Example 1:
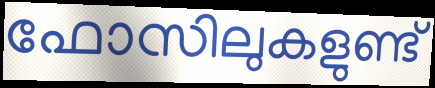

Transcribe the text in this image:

ഫോസിലുകളുണ്ട്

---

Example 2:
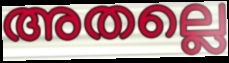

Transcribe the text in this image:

അതല്ലെ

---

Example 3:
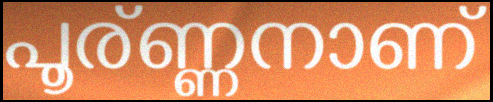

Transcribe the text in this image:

പൂര്ണ്ണനാണ്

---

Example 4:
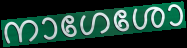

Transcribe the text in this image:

നാഗേശോ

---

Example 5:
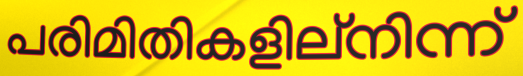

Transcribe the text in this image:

പരിമിതികളില്നിന്ന്